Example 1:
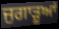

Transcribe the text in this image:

ਜੁਗਾੜੂਆਂ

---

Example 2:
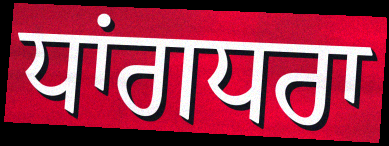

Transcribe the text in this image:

ਧਾਂਗਧਰਾ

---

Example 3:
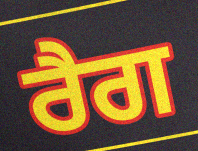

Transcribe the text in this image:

ਰੈਗ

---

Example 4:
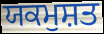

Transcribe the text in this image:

ਯਕਮੁਸ਼ਤ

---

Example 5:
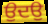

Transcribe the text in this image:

ਉਦਉ